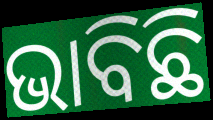
ଭାବିଛି